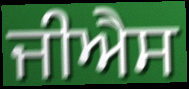
ਜੀਐਸ